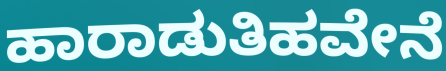
ಹಾರಾಡುತಿಹವೇನೆ